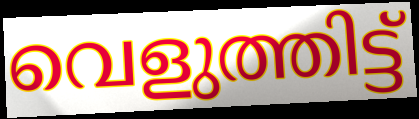
വെളുത്തിട്ട്